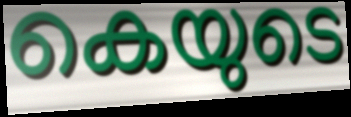
കെയുടെ